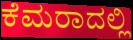
ಕೆಮರಾದಲ್ಲಿ